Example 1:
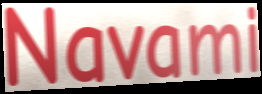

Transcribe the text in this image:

Navami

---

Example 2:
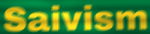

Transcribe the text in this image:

Saivism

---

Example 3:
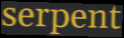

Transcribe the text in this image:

serpent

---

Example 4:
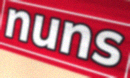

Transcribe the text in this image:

nuns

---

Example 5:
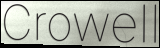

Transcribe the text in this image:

Crowell